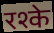
रश्के